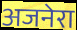
अजनेरा